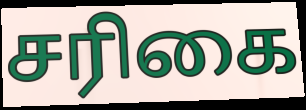
சரிகை